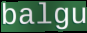
balgu